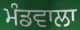
ਮੰਡਵਾਲਾ